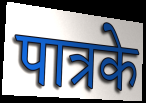
पात्रके